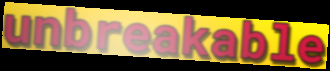
unbreakable